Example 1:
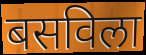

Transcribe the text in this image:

बसविला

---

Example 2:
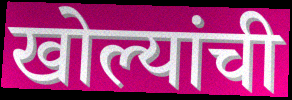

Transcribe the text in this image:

खोल्यांची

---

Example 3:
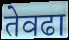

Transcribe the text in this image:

तेवढा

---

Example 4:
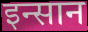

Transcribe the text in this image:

इन्सान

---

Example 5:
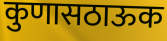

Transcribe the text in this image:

कुणासठाऊक